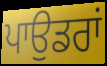
ਪਾਉਡਰਾਂ